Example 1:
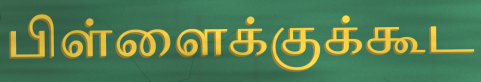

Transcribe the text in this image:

பிள்ளைக்குக்கூட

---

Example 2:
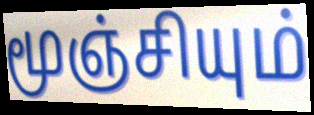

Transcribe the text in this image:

மூஞ்சியும்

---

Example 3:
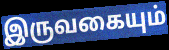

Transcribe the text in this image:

இருவகையும்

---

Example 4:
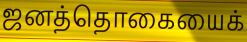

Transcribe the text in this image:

ஜனத்தொகையைக்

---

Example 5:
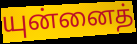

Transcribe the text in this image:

யுன்னைத்